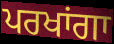
ਪਰਖਾਂਗਾ